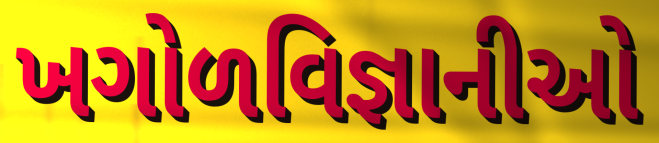
ખગોળવિજ્ઞાનીઓ